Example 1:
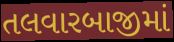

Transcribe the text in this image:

તલવારબાજીમાં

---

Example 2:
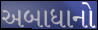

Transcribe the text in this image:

અબાધાનો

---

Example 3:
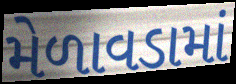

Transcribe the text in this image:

મેળાવડામાં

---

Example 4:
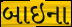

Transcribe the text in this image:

બાઇના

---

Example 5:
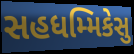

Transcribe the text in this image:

સહધમ્મિકેસુ